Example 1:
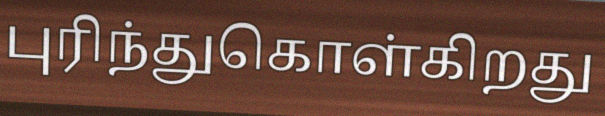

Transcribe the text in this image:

புரிந்துகொள்கிறது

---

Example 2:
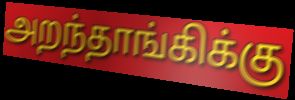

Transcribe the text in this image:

அறந்தாங்கிக்கு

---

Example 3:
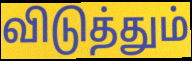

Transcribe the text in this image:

விடுத்தும்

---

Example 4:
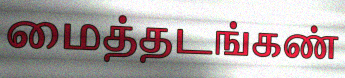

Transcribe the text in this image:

மைத்தடங்கண்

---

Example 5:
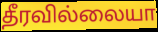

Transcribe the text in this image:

தீரவில்லையா